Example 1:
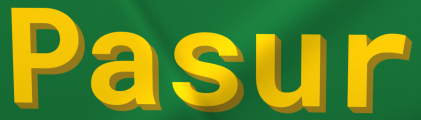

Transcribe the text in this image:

Pasur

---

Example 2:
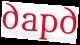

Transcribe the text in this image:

dapd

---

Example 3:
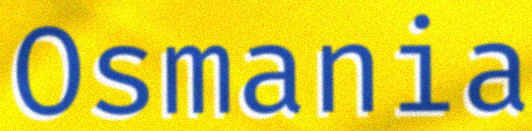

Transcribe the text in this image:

Osmania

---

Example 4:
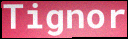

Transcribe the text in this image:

Tignor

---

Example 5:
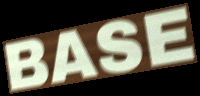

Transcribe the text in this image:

BASE